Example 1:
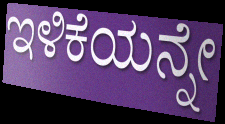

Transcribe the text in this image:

ಇಳಿಕೆಯನ್ನೇ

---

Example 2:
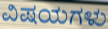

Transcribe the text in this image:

ವಿಷಯಗಳು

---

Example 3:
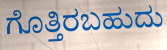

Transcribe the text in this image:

ಗೊತ್ತಿರಬಹುದು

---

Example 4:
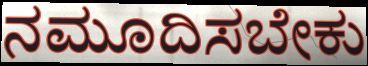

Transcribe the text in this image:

ನಮೂದಿಸಬೇಕು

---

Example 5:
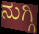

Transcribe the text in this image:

ನುಗ್ಗಿ